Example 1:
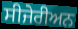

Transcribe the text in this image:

ਸੀਜੇਰੀਅਨ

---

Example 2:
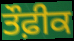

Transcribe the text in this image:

ਤੌਫ਼ੀਕ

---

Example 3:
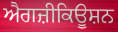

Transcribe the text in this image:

ਐਗਜ਼ੀਕਿਊਸ਼ਨ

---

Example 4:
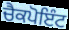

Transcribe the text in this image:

ਚੈਕਪੋਇੰਟ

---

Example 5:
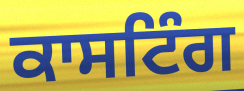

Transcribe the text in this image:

ਕਾਸਟਿੰਗ